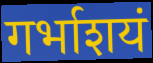
गर्भाशयं